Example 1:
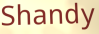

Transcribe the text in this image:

Shandy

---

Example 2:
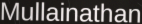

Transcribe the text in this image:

Mullainathan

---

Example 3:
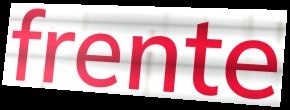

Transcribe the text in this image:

frente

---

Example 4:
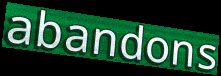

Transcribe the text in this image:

abandons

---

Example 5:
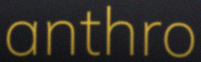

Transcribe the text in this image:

anthro